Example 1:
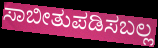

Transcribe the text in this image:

ಸಾಬೀತುಪಡಿಸಬಲ್ಲ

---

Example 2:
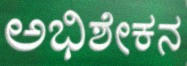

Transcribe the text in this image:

ಅಭಿಶೇಕನ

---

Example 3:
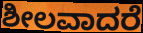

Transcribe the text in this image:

ಶೀಲವಾದರೆ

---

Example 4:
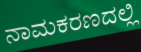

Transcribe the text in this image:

ನಾಮಕರಣದಲ್ಲಿ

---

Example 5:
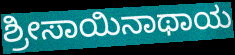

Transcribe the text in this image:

ಶ್ರೀಸಾಯಿನಾಥಾಯ